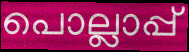
പൊല്ലാപ്പ്